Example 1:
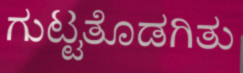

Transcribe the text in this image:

ಗುಟ್ಟತೊಡಗಿತು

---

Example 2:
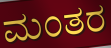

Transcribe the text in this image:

ಮಂತರ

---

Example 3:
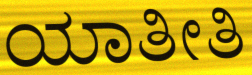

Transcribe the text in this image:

ಯಾತೀತಿ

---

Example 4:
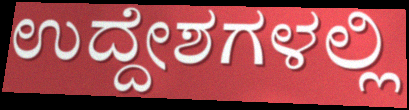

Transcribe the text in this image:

ಉದ್ದೇಶಗಳಲ್ಲಿ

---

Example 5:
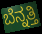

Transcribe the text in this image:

ಬೆನ್ನತ್ತಿ